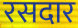
रसदार